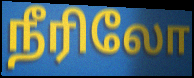
நீரிலோ